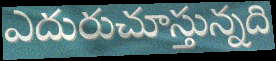
ఎదురుచూస్తున్నది